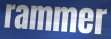
rammer